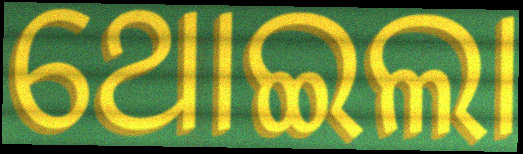
ଥୋଇଲା